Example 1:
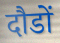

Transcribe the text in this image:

दौडों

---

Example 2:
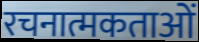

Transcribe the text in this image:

रचनात्मकताओं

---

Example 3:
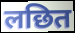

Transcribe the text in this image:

लछित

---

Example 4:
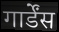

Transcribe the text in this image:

गार्डेंस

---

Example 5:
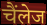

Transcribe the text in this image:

चैंलेज